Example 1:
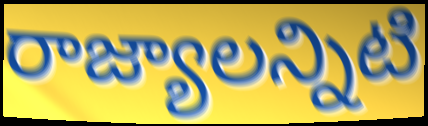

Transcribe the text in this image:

రాజ్యాలన్నిటి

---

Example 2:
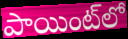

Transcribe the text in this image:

పాయింట్‌లో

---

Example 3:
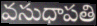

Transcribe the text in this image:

వసుధాపతి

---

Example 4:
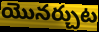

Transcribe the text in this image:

యొనర్చుట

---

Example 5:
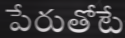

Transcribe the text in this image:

పేరుతోటే